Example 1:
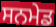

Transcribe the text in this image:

ਸਨਮੇਡ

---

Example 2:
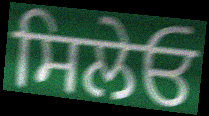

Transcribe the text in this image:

ਸਿਲੇਓ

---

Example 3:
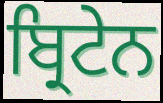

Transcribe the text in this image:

ਬ੍ਰਿਟੇਨ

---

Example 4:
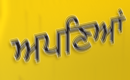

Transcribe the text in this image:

ਅਪਣਿਆਂ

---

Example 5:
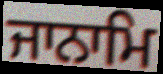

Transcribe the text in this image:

ਜਾਨਾਮਿ